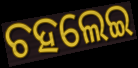
ଚହଲେଇ